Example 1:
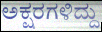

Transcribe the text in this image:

ಅಕ್ಷರಗಳಿದ್ದು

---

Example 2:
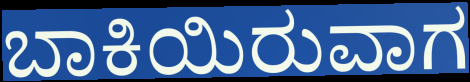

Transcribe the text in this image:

ಬಾಕಿಯಿರುವಾಗ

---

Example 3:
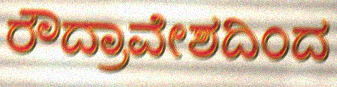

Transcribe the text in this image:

ರೌದ್ರಾವೇಶದಿಂದ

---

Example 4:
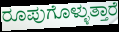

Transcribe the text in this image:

ರೂಪುಗೊಳ್ಳುತ್ತಾರೆ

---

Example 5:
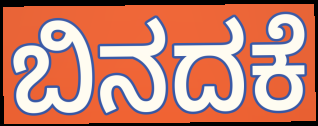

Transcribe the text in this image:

ಬಿನದಕೆ